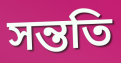
সন্ততি